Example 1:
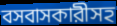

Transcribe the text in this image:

বসবাসকারীসহ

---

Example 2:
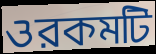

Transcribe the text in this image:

ওরকমটি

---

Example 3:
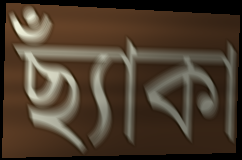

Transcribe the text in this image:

ছ্যাঁকা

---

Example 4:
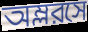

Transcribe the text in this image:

অম্লরসে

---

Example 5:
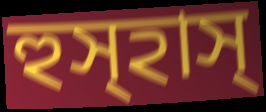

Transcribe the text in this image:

হুস্‌হাস্